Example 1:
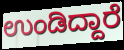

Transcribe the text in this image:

ಉಂಡಿದ್ದಾರೆ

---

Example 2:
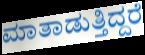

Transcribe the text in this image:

ಮಾತಾಡುತ್ತಿದ್ದರೆ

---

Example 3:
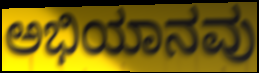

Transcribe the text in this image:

ಅಭಿಯಾನವು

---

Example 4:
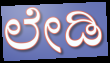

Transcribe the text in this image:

ಲೇಡಿ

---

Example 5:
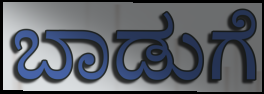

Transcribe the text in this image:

ಬಾಡುಗೆ